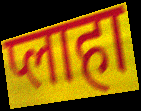
प्लाहा